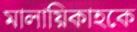
মালায়িকাহকে